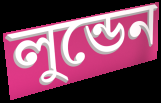
লুন্ডেন